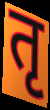
तृ